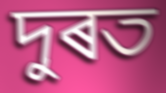
দুৰত